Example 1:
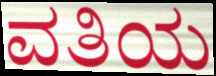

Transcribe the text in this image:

ವತಿಯ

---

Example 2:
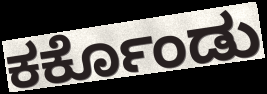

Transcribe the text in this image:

ಕರ್ಕೊಂಡು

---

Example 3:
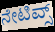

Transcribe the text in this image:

ನೇಟಿವ್ಸ್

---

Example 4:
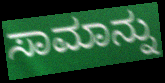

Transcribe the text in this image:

ಸಾಮಾನ್ನು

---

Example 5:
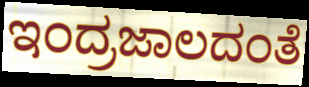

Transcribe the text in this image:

ಇಂದ್ರಜಾಲದಂತೆ